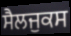
ਸੈਲਜੁਕਸ